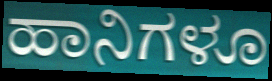
ಹಾನಿಗಳೂ